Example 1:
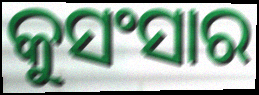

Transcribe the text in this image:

କୁସଂସାର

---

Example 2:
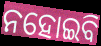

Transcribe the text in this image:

ନହୋଇବି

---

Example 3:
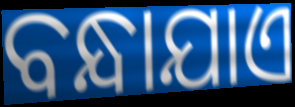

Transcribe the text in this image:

ବନ୍ଧାଯାଏ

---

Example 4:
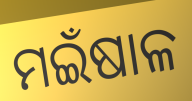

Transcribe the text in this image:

ମଇଁଷାଳ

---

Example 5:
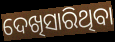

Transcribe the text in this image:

ଦେଖିସାରିଥିବା